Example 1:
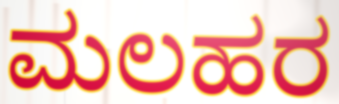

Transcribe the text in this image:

ಮಲಹರ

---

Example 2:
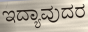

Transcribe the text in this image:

ಇದ್ಯಾವುದರ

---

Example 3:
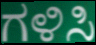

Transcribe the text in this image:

ಗಳಿಸಿ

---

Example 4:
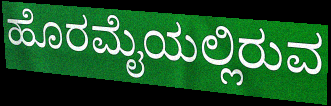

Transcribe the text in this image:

ಹೊರಮೈಯಲ್ಲಿರುವ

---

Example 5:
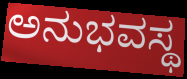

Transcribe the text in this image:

ಅನುಭವಸ್ಥ